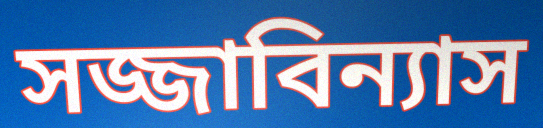
সজ্জাবিন্যাস